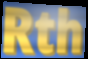
Rth